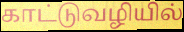
காட்டுவழியில்